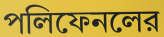
পলিফেনলের